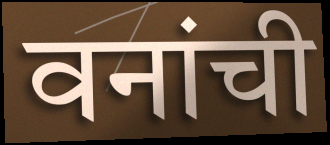
वनांची